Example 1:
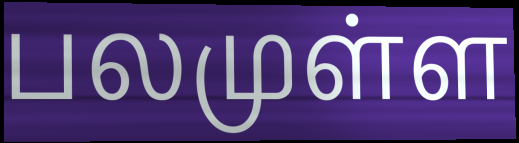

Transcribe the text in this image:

பலமுள்ள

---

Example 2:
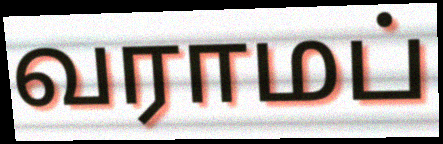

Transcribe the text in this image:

வராமப்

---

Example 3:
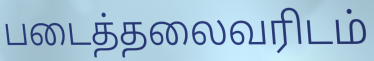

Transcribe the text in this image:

படைத்தலைவரிடம்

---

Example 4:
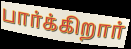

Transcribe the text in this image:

பார்க்கிறார்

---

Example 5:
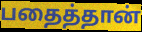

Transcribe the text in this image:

பதைத்தான்